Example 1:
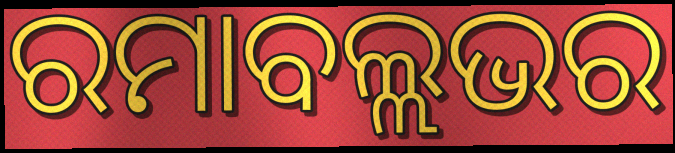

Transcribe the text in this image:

ରମାବଲ୍ଲଭର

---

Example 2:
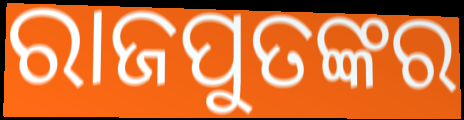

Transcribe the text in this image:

ରାଜପୁତଙ୍କର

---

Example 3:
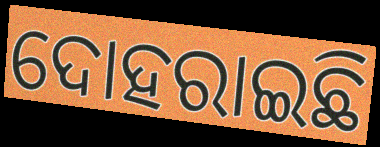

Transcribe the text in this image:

ଦୋହରାଇଛି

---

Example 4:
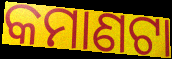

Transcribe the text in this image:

କମାଣଟା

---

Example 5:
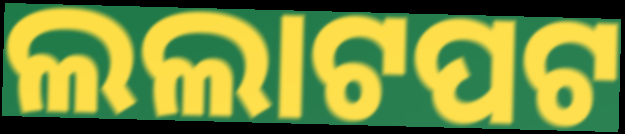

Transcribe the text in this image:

ଲଲାଟପଟ